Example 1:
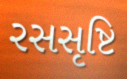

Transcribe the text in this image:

રસસૃષ્ટિ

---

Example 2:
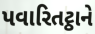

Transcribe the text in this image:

પવારિતટ્ઠાને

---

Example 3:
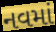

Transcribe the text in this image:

નવમાં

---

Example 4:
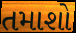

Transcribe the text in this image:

તમાશો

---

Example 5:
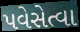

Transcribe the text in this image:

પવેસેત્વા